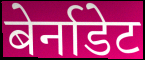
बेर्नाडेट